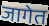
जागेत